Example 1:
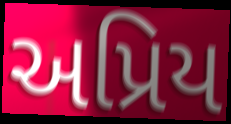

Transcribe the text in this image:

અપ્રિય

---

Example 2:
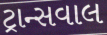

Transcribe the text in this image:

ટ્રાન્સવાલ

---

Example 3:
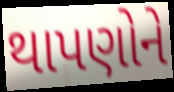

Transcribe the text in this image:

થાપણોને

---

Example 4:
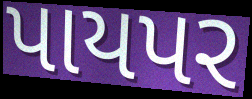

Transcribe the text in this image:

પાયપર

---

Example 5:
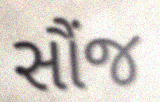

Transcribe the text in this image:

સૌંજ